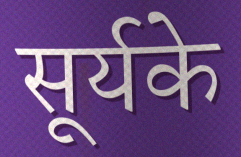
सूर्यके